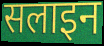
सलाइन